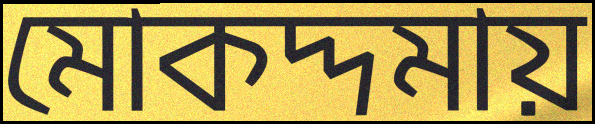
মোকদ্দমায়